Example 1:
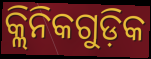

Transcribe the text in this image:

କ୍ଲିନିକଗୁଡ଼ିକ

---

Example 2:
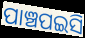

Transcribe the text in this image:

ପାଞ୍ଚପଇସି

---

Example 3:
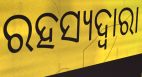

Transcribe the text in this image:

ରହସ୍ୟଦ୍ଵାରା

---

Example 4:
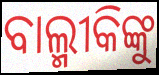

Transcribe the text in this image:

ବାଲ୍ମୀକିଙ୍କୁ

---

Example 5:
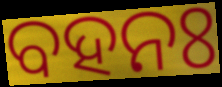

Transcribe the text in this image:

ବହନଃ